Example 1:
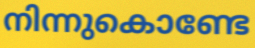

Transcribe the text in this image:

നിന്നുകൊണ്ടേ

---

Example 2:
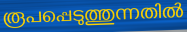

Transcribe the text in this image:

രൂപപ്പെടുത്തുന്നതിൽ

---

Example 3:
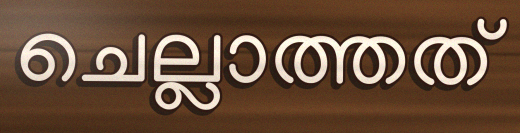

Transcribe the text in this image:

ചെല്ലാത്തത്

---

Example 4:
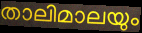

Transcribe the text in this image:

താലിമാലയും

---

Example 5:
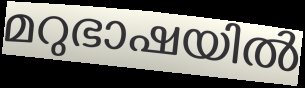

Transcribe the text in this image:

മറുഭാഷയിൽ